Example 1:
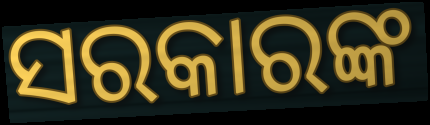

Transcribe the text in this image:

ସରକାରଙ୍କ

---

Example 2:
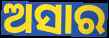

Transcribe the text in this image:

ଅସାର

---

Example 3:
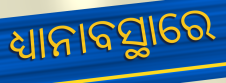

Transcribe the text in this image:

ଧ୍ୟାନାବସ୍ଥାରେ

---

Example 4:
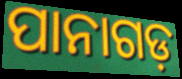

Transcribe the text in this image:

ପାନାଗଡ଼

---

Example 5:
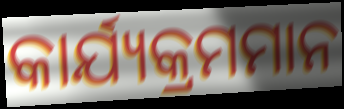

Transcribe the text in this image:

କାର୍ଯ୍ୟକ୍ରମମାନ